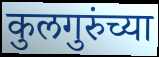
कुलगुरुंच्या